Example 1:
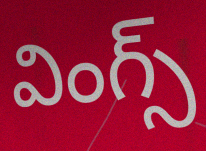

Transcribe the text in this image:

వింగ్స్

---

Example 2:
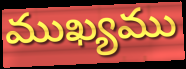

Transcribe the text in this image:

ముఖ్యము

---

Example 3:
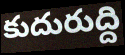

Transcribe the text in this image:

కుదురుద్ది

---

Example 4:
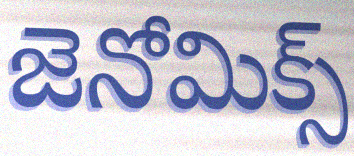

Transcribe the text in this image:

జెనోమిక్స్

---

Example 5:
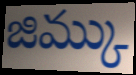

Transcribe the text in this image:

జిమ్కు